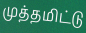
முத்தமிட்டு